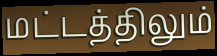
மட்டத்திலும்